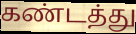
கண்டத்து